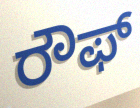
ರೌಫ್